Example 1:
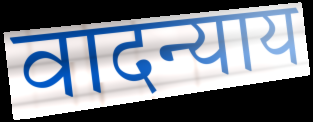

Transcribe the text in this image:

वादन्याय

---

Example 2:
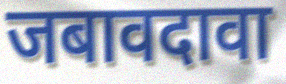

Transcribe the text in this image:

जबावदावा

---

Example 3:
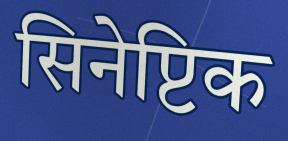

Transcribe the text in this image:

सिनेप्टिक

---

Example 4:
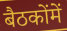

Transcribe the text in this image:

बैठकोंमें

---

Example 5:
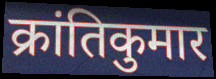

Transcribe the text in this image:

क्रांतिकुमार